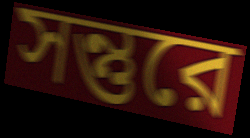
সন্তুরে